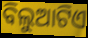
ବିଲୁଆଟିଏ